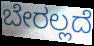
ಬೇರಲ್ಲದೆ